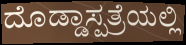
ದೊಡ್ಡಾಸ್ಪತ್ರೆಯಲ್ಲಿ